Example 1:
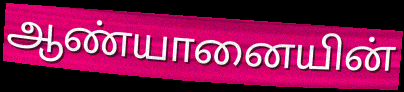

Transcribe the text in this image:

ஆண்யானையின்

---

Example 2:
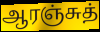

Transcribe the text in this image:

ஆரஞ்சுத்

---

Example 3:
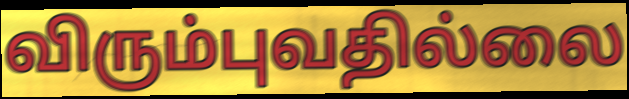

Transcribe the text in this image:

விரும்புவதில்லை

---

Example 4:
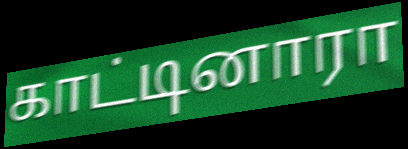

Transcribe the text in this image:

காட்டினாரா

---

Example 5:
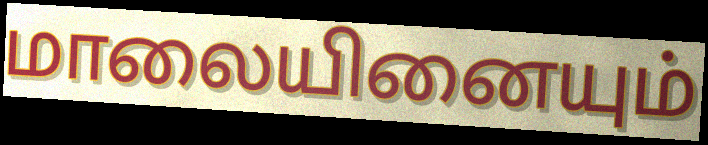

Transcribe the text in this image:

மாலையினையும்